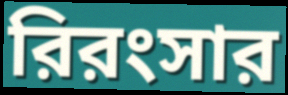
রিরংসার